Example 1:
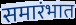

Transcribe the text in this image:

समारंभात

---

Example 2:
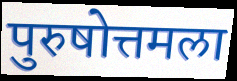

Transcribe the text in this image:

पुरुषोत्तमला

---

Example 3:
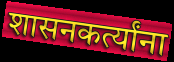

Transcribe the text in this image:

शासनकर्त्यांना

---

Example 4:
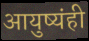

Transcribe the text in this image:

आयुष्यंही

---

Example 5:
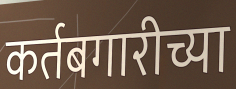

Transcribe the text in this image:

कर्तबगारीच्या